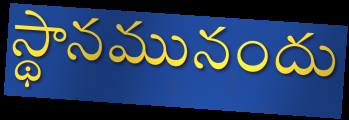
స్థానమునందు